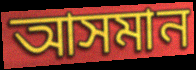
আসমান